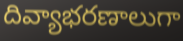
దివ్యాభరణాలుగా